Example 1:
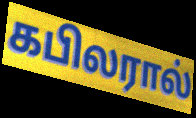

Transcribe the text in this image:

கபிலரால்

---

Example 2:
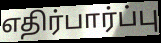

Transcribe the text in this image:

எதிர்பார்ப்பு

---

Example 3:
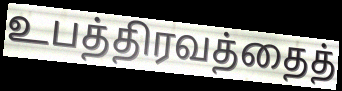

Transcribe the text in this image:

உபத்திரவத்தைத்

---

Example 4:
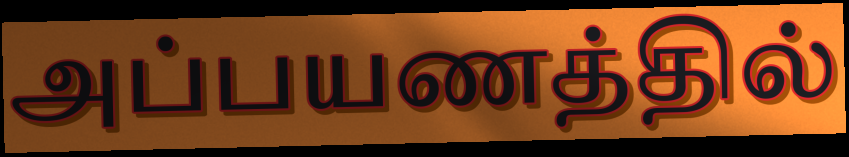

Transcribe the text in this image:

அப்பயணத்தில்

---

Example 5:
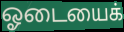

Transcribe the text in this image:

ஓடையைக்